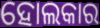
ହୋଲକାର